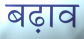
बढ़ाव